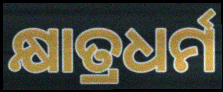
କ୍ଷାତ୍ରଧର୍ମ